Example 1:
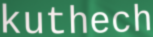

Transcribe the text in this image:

kuthech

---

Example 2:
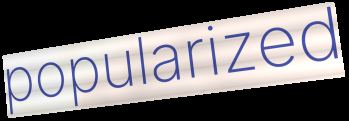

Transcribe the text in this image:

popularized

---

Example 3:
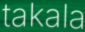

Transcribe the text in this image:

takala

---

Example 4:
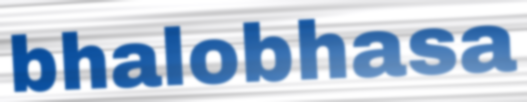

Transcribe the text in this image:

bhalobhasa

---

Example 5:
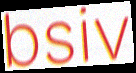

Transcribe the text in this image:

bsiv